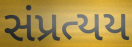
સંપ્રત્યય